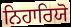
ਨਿਹਾਰਿਯੋ